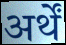
अर्थें